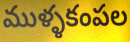
ముళ్ళకంపల